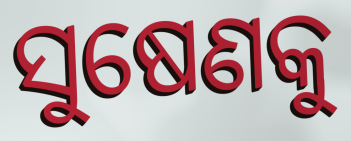
ସୁଷେଣକୁ